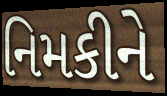
નિમકીને